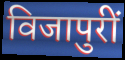
विजापुरीं